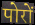
पोरों